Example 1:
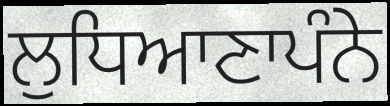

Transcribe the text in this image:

ਲੁਧਿਆਣਾਪੰਨੇ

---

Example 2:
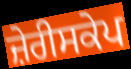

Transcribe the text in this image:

ਜ਼ੇਰੀਸਕੇਪ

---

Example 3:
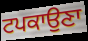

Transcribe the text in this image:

ਟਪਕਾਉਣਾ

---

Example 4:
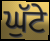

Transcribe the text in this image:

ਘੁੱਟੇ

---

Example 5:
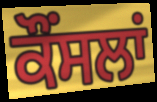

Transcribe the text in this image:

ਕੌਂਸਲਾਂ